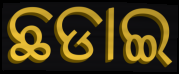
ଛଡାଇ